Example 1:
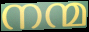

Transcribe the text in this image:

നന്മ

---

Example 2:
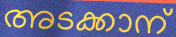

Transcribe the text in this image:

അടക്കാന്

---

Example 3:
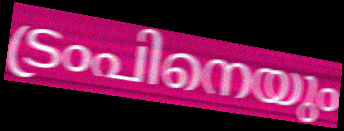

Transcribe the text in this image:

ട്രംപിനെയും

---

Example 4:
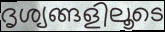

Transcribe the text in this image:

ദൃശ്യങ്ങളിലൂടെ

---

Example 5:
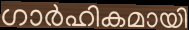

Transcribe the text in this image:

ഗാർഹികമായി